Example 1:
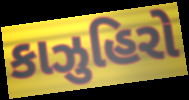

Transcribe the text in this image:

કાઝુહિરો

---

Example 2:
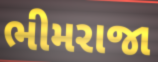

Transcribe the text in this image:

ભીમરાજા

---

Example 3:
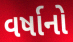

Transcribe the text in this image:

વર્ષાનો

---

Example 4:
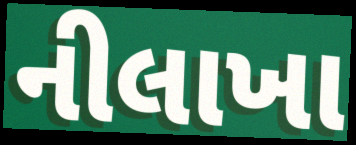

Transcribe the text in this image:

નીલાખા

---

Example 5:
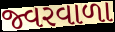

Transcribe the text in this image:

જ્વરવાળા